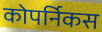
कोपर्निकस